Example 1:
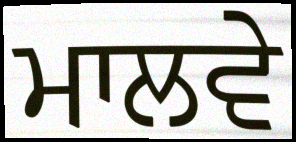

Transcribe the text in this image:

ਮਾਲਵੇ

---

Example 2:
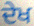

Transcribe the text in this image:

ਦੇਖ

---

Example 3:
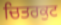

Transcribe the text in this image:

ਚਿਤਰਕੁਟ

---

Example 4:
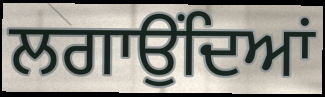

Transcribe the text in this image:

ਲਗਾਉਂਦਿਆਂ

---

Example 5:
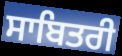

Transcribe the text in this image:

ਸਾਬਿਤਰੀ